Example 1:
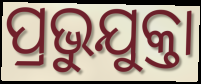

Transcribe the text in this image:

ପ୍ରଭୁଯୁକ୍ତା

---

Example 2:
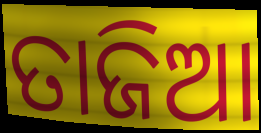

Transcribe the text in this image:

ତାଜିଆ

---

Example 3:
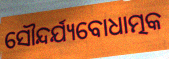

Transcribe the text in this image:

ସୌନ୍ଦର୍ଯ୍ୟବୋଧାତ୍ମକ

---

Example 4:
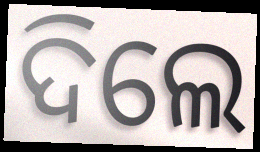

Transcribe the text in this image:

ଦିଲେ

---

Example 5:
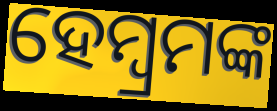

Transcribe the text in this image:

ହେମ୍ବ୍ରମଙ୍କ